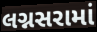
લગ્નસરામાં